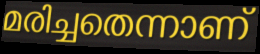
മരിച്ചതെന്നാണ്